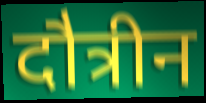
दौत्रीन